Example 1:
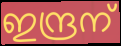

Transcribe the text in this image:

ഇന്ദ്രന്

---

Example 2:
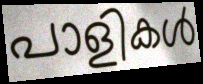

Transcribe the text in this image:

പാളികൾ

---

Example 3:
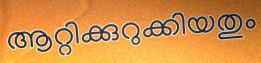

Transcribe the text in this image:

ആറ്റിക്കുറുക്കിയതും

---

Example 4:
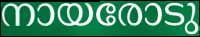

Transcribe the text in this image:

നായരോടു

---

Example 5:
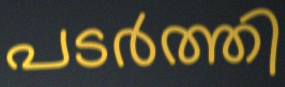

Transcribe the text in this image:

പടർത്തി